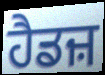
ਹੈਡਜ਼